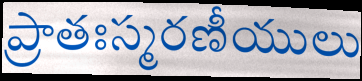
ప్రాతఃస్మరణీయులు